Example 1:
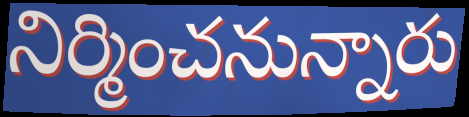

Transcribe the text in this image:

నిర్మించనున్నారు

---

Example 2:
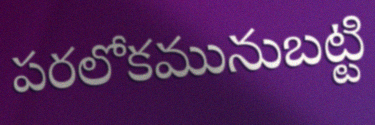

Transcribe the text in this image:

పరలోకమునుబట్టి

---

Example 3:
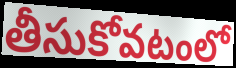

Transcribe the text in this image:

తీసుకోవటంలో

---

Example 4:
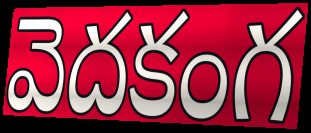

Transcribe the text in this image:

వెదకంగ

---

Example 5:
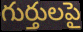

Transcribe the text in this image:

గుర్తులపై